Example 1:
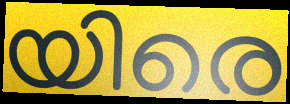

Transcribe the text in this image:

യിരെ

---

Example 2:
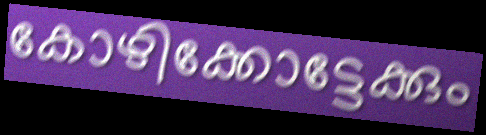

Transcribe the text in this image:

കോഴിക്കോട്ടേക്കും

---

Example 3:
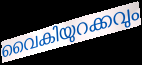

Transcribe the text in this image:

വൈകിയുറക്കവും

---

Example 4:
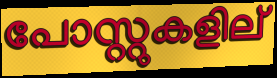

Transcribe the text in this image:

പോസ്റ്റുകളില്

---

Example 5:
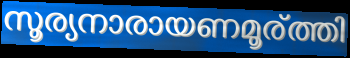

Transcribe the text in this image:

സൂര്യനാരായണമൂര്ത്തി